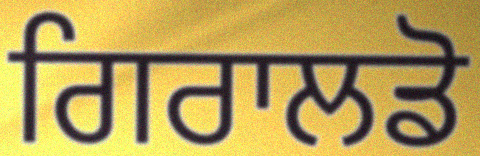
ਗਿਰਾਲਡੋ